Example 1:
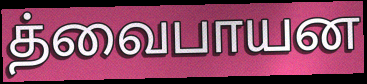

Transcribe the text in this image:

த்வைபாயன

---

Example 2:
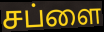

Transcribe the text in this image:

சப்ளை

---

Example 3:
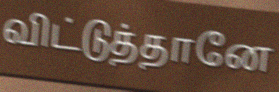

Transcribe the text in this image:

விட்டுத்தானே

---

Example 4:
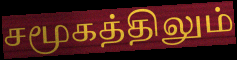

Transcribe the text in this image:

சமூகத்திலும்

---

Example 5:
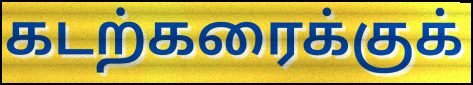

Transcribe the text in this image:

கடற்கரைக்குக்